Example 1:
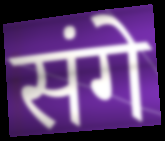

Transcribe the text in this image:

संगे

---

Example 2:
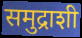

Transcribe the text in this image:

समुद्राशी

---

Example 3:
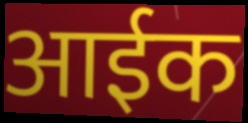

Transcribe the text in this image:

आईक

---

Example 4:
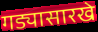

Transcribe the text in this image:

गड्यासारखे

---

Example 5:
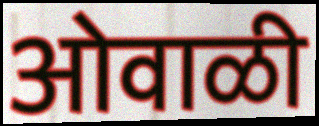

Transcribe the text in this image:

ओवाळी